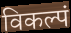
विकल्पं